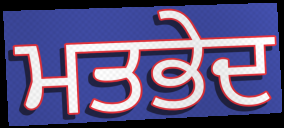
ਮਤਭੇਦ